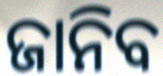
ଜାନିବ